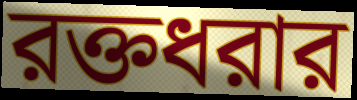
রক্তধরার